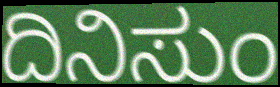
ದಿನಿಸುಂ